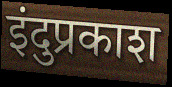
इंदुप्रकाश